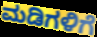
ಮಡಿಗಳಿಗೆ